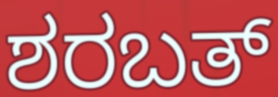
ಶರಬತ್